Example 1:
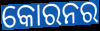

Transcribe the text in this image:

କୋରନର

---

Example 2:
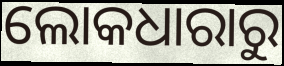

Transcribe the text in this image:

ଲୋକଧାରାରୁ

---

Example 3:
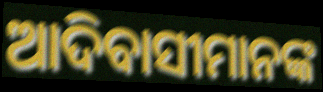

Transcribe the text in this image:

ଆଦିବାସୀମାନଙ୍କ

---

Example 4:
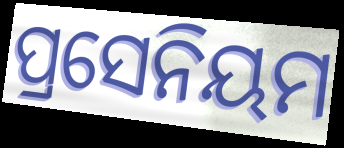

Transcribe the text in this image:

ପ୍ରସେନିୟମ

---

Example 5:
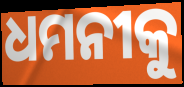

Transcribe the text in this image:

ଧମନୀକୁ